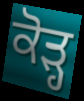
ਕੋੜ੍ਹ